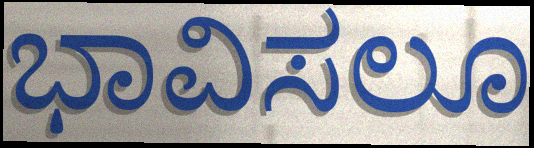
ಭಾವಿಸಲೂ